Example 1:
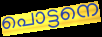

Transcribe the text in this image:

പൊട്ടനെ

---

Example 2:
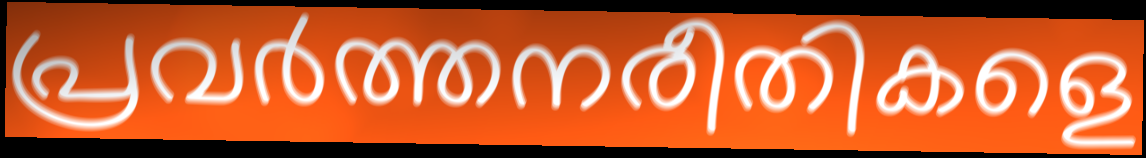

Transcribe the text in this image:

പ്രവർത്തനരീതികളെ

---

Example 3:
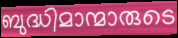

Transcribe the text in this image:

ബുദ്ധിമാന്മാരുടെ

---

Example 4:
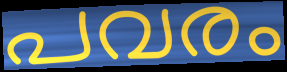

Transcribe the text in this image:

പവരം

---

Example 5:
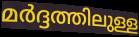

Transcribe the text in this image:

മർദ്ദത്തിലുള്ള